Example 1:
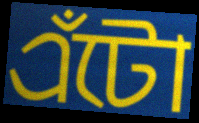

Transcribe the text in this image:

এঁটো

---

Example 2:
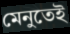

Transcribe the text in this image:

মেনুতেই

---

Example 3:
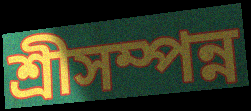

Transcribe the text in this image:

শ্রীসম্পন্ন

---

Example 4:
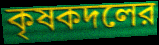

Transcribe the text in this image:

কৃষকদলের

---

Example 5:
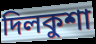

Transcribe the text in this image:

দিলকুশা